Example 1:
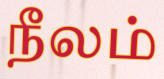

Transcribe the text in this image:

நீலம்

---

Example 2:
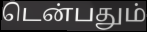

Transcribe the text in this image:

டென்பதும்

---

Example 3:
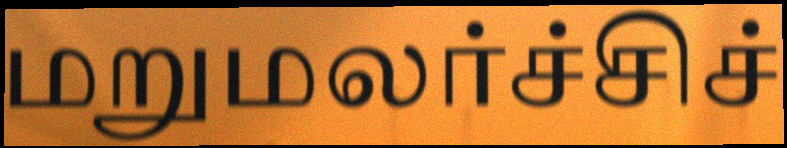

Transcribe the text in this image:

மறுமலர்ச்சிச்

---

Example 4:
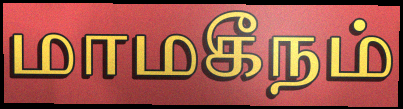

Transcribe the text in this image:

மாமகீநம்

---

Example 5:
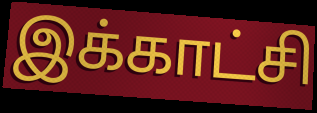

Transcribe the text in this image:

இக்காட்சி